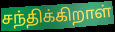
சந்திக்கிறாள்